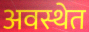
अवस्थेत